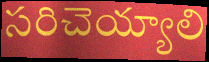
సరిచెయ్యాలి